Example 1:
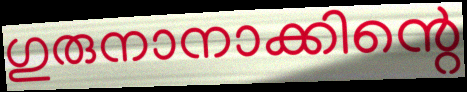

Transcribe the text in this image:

ഗുരുനാനാക്കിന്റെ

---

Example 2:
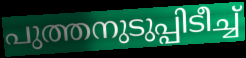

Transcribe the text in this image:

പുത്തനുടുപ്പിടീച്ച്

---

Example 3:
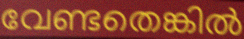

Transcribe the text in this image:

വേണ്ടതെങ്കിൽ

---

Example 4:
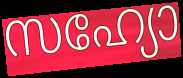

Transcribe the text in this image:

സഹ്യോ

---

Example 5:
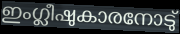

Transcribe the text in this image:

ഇംഗ്ലീഷുകാരനോടു്